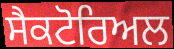
ਸੈਕਟੋਰਿਅਲ